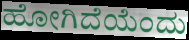
ಹೋಗಿದೆಯೆಂದು